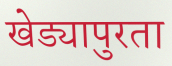
खेड्यापुरता